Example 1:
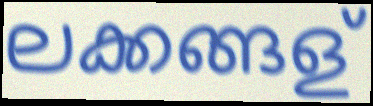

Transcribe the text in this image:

ലക്കങ്ങള്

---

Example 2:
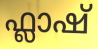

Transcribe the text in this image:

ഫ്ലാഷ്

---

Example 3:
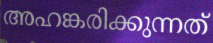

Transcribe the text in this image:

അഹങ്കരിക്കുന്നത്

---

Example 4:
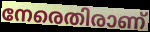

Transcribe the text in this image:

നേരെതിരാണ്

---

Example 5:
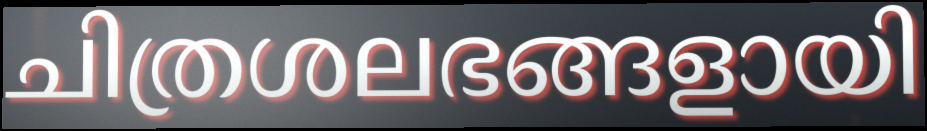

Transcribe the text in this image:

ചിത്രശലഭങ്ങളായി